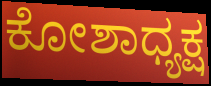
ಕೋಶಾಧ್ಯಕ್ಷ